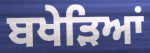
ਬਖੇੜਿਆਂ